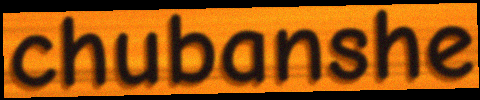
chubanshe